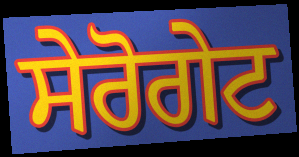
ਸੇਰੋਗੇਟ